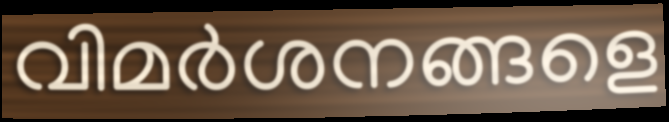
വിമർശനങ്ങളെ